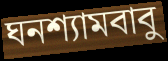
ঘনশ্যামবাবু